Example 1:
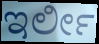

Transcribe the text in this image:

ಇರ್ಲೀ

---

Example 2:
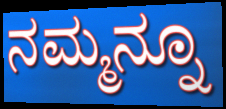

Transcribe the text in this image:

ನಮ್ಮನ್ನೂ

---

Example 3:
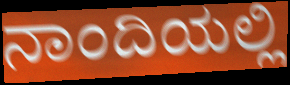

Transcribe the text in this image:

ನಾಂದಿಯಲ್ಲಿ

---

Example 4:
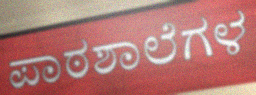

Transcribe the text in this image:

ಪಾಠಶಾಲೆಗಳ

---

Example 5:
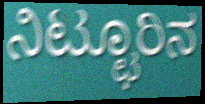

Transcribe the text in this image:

ನಿಟ್ಟೂರಿನ